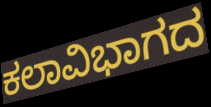
ಕಲಾವಿಭಾಗದ